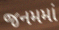
જનમમાં